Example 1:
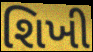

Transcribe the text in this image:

શિખી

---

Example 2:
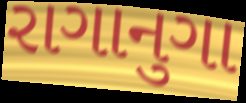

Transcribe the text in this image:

રાગાનુગા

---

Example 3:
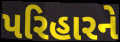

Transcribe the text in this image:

પરિહારને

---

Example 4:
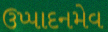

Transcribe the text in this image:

ઉપ્પાદનમેવ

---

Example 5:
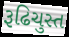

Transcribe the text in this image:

રૂઢિચુસ્ત